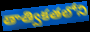
తాత్వికతలోని